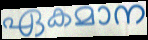
ഏകമാന